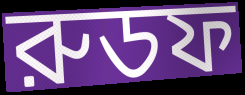
রুডফ